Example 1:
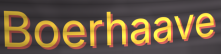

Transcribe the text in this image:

Boerhaave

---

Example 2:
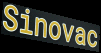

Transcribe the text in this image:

Sinovac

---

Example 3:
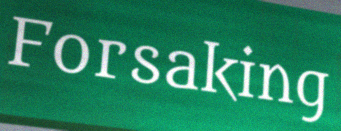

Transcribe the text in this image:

Forsaking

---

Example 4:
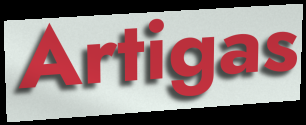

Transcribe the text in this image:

Artigas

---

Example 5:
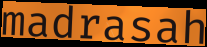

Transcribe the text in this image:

madrasah